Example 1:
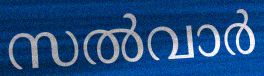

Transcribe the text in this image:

സൽവാർ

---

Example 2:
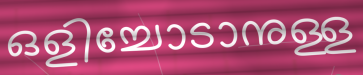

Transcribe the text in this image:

ഒളിച്ചോടാനുള്ള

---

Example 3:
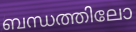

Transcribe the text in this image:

ബന്ധത്തിലോ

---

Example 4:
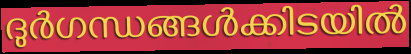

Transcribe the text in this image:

ദുർഗന്ധങ്ങൾക്കിടയിൽ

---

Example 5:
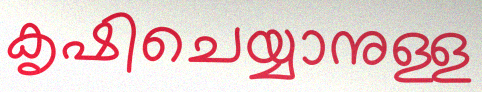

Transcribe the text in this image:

കൃഷിചെയ്യാനുള്ള